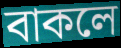
বাকলে